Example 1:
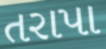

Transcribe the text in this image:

તરાપા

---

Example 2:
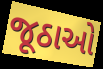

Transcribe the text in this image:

જૂઠાઓ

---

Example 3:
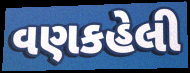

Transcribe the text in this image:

વણકહેલી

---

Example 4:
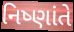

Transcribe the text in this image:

નિષ્ણાંતે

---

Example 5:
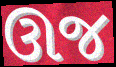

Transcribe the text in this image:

ઊજ